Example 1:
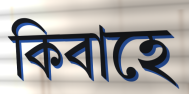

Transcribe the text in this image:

কিবাহে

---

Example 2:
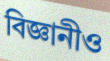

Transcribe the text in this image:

বিজ্ঞানীও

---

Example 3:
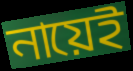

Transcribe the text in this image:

নায়েই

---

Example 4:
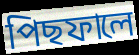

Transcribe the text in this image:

পিছফালে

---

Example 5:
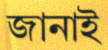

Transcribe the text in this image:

জানাই